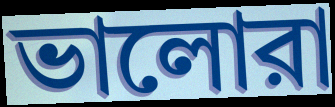
ভালোরা